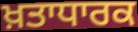
ਖ਼ਤਾਧਾਰਕ